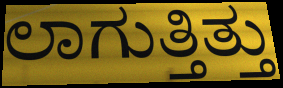
ಲಾಗುತ್ತಿತ್ತು